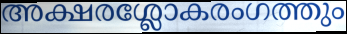
അക്ഷരശ്ലോകരംഗത്തും